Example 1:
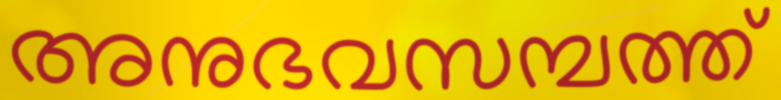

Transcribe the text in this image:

അനുഭവസമ്പത്ത്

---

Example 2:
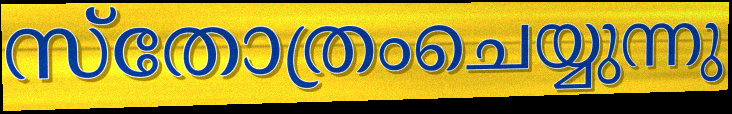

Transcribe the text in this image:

സ്തോത്രംചെയ്യുന്നു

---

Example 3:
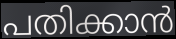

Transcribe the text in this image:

പതിക്കാൻ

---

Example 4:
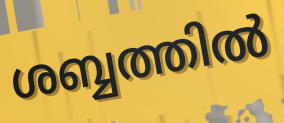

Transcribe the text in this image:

ശബ്ബത്തിൽ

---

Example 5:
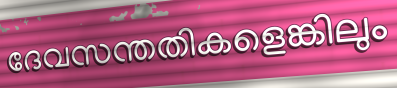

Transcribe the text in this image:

ദേവസന്തതികളെങ്കിലും